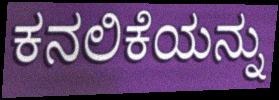
ಕನಲಿಕೆಯನ್ನು